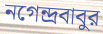
নগেন্দ্রবাবুর